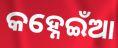
କହ୍ନେଇଁଆ